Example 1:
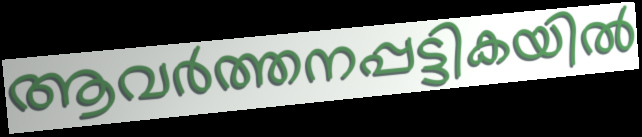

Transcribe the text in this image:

ആവർത്തനപ്പട്ടികയിൽ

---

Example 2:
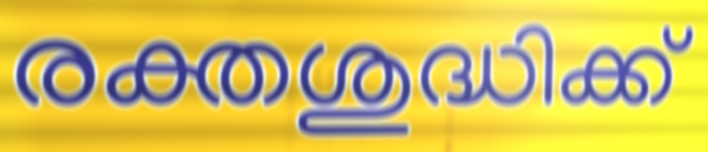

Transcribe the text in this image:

രക്തശുദ്ധിക്ക്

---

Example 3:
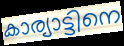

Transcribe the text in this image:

കാര്യാട്ടിനെ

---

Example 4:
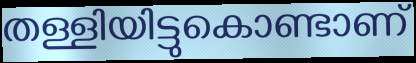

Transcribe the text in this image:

തള്ളിയിട്ടുകൊണ്ടാണ്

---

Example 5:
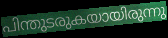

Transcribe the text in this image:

പിന്തുടരുകയായിരുന്നു